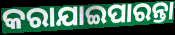
କରାଯାଇପାରନ୍ତା